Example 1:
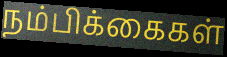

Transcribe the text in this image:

நம்பிக்கைகள்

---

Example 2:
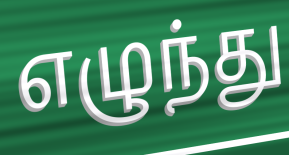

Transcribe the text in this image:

எழுந்து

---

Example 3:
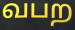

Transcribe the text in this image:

வபற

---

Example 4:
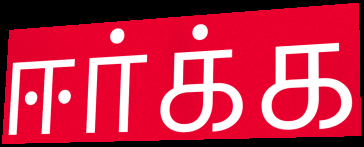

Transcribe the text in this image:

ஈர்க்க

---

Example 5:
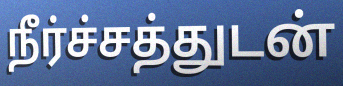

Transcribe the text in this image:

நீர்ச்சத்துடன்